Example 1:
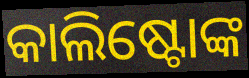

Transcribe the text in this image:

କାଲିଷ୍ଟୋଙ୍କ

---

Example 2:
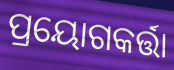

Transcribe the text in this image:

ପ୍ରୟୋଗକର୍ତ୍ତା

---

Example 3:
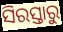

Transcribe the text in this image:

ସିରସ୍ତାରୁ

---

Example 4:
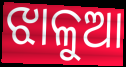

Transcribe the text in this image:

ଝାଳୁଆ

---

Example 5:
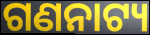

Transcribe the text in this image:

ଗଣନାଟ୍ୟ